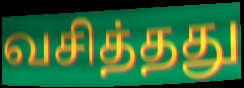
வசித்தது